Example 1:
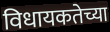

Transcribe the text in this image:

विधायकतेच्या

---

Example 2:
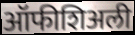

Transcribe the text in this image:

ऑफीशिअली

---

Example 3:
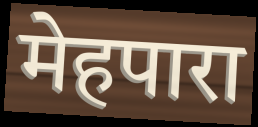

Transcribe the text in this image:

मेहपारा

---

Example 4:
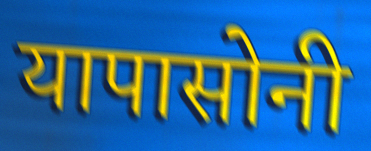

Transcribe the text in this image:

यापासोनी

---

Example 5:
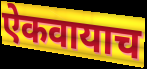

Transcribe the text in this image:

ऐकवायाच